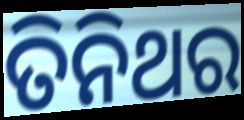
ତିନିଥର